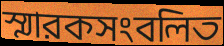
স্মারকসংবলিত